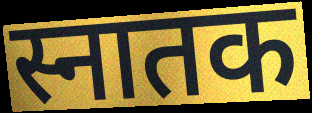
स्नातक